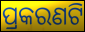
ପ୍ରକରଣଟି